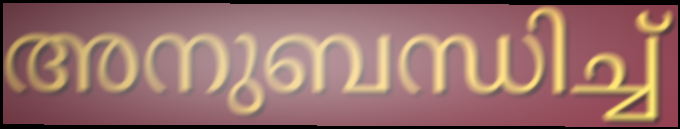
അനുബന്ധിച്ച്